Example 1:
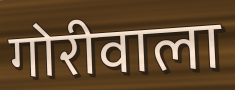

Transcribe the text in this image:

गोरीवाला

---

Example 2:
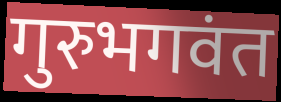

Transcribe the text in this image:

गुरुभगवंत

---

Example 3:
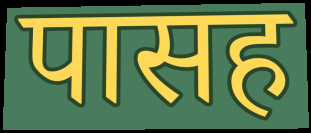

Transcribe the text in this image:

पासह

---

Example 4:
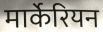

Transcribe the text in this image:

मार्केरियन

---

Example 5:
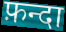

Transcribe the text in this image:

फ़न्दा